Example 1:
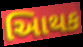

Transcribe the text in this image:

આિથક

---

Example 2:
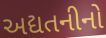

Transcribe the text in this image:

અદ્યતનીનો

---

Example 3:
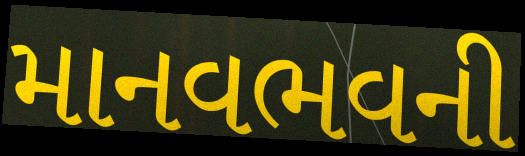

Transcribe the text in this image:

માનવભવની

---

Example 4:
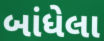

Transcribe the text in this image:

બાંધેલા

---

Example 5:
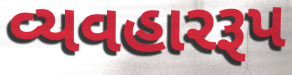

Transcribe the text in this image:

વ્યવહારરૂપ